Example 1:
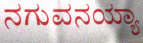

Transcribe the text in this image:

ನಗುವನಯ್ಯಾ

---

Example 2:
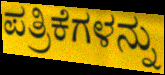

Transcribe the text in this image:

ಪತ್ರಿಕೆಗಳನ್ನು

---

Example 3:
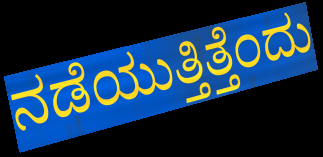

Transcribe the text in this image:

ನಡೆಯುತ್ತಿತ್ತೆಂದು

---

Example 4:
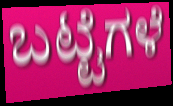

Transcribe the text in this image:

ಬಟ್ಟೆಗಳೆ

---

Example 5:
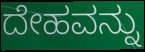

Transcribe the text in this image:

ದೇಹವನ್ನು